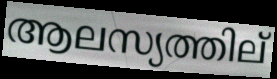
ആലസ്യത്തില്